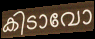
കിടാവോ